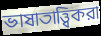
ভাষাতাত্ত্বিকরা